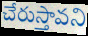
చేరుస్తావని